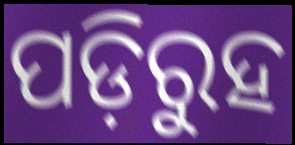
ପଡ଼ିରୁହ